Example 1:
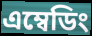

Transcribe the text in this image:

এম্বেডিং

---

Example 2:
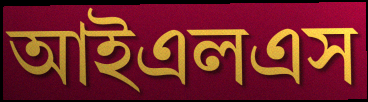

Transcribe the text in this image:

আইএলএস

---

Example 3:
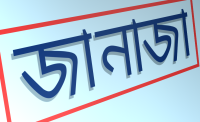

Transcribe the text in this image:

জানাজা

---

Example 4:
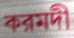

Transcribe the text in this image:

করমদী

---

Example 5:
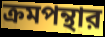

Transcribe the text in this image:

ক্রমপন্থার